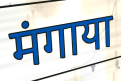
मंगाया